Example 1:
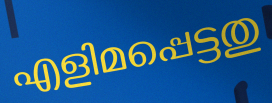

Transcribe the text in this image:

എളിമപ്പെട്ടതു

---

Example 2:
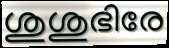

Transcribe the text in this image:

ശുശുഭിരേ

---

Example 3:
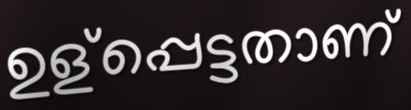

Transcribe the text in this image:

ഉള്പ്പെട്ടതാണ്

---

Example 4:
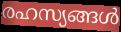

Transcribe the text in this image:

രഹസ്യങ്ങൾ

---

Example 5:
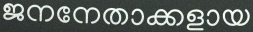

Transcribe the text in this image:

ജനനേതാക്കളായ